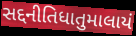
સદ્દનીતિધાતુમાલાયં